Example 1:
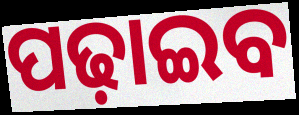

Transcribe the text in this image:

ପଢ଼ାଇବ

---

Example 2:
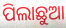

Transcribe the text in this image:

ପିଲାଛୁଆ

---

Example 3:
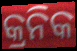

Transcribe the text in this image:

କ୍ରନିକ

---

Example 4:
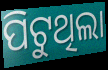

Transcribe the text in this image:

ପିଟୁଥିଲା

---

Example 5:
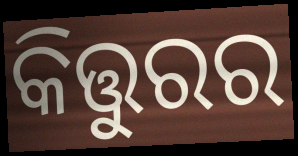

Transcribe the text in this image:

କିତ୍ତୁରର